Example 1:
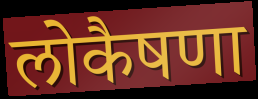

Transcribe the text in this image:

लोकैषणा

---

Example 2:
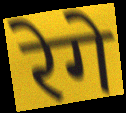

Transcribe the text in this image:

रेगे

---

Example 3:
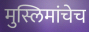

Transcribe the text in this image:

मुस्लिमांचेच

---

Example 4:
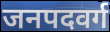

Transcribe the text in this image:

जनपदवर्ग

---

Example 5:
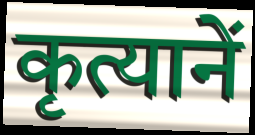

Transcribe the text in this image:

कृत्यानें